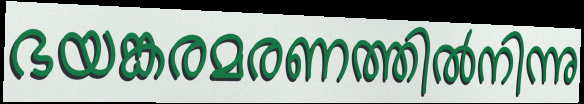
ഭയങ്കരമരണത്തിൽനിന്നു